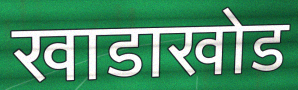
खाडाखोड